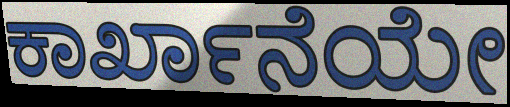
ಕಾರ್ಖಾನೆಯೇ